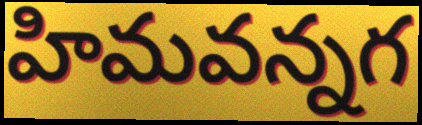
హిమవన్నగ